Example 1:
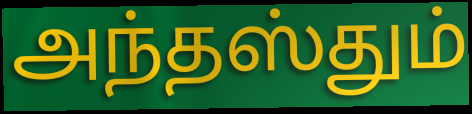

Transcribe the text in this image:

அந்தஸ்தும்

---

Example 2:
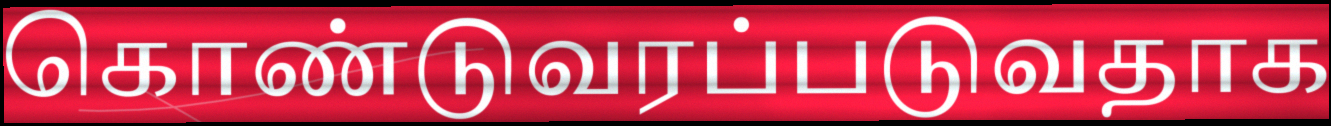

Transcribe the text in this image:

கொண்டுவரப்படுவதாக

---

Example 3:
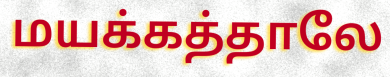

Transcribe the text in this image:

மயக்கத்தாலே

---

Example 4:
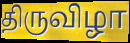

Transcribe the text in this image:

திருவிழா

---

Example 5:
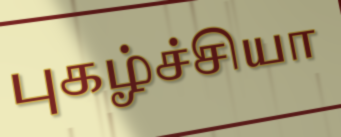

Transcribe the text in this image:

புகழ்ச்சியா